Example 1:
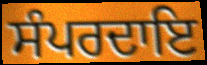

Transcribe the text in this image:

ਸੰਪਰਦਾਇ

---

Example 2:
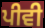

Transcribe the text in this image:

ਪੀਵੀ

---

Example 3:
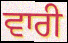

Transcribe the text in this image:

ਵਾਰੀ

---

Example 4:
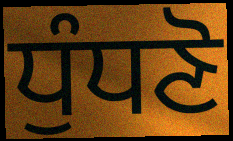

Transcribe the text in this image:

ਧੁੰਧਣੋ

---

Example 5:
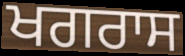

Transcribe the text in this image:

ਖਗਰਾਸ